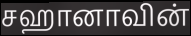
சஹானாவின்